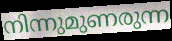
നിന്നുമുണരുന്ന